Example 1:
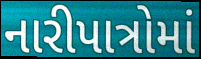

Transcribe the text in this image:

નારીપાત્રોમાં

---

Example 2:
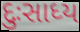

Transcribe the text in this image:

દુઃસાધ્ય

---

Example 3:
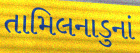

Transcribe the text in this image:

તામિલનાડુનાં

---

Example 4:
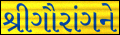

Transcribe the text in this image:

શ્રીગૌરાંગને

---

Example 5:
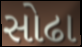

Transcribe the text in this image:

સોઢા